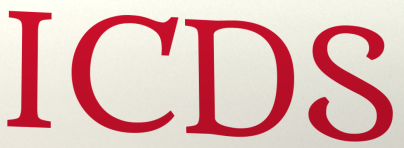
ICDS